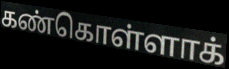
கண்கொள்ளாக்